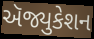
ઍજ્યુકેશન